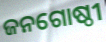
ଜନଗୋଷ୍ଠୀ